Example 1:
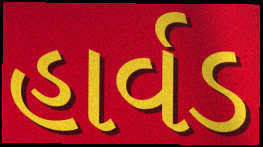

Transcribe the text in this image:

હાર્વડ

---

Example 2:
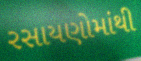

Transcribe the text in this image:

રસાયણોમાંથી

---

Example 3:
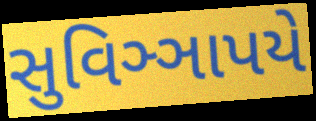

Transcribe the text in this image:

સુવિઞ્ઞાપયે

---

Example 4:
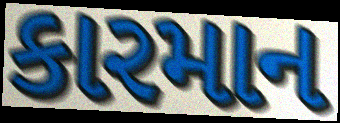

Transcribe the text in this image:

કારમાન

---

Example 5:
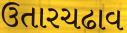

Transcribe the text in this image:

ઉતારચઢાવ